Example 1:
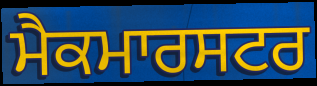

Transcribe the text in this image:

ਮੈਕਮਾਰਸਟਰ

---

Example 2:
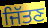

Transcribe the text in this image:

ਜਿੱਤਣ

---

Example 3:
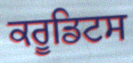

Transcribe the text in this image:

ਕਰੂਡਿਟਸ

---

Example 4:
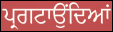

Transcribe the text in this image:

ਪ੍ਰਗਟਾਉਂਦਿਆਂ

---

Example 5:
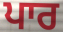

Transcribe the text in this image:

ਪਾਰ